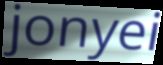
jonyei